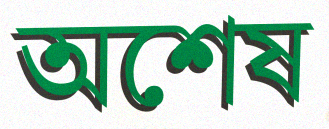
অশেষ